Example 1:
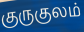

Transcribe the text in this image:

குருகுலம்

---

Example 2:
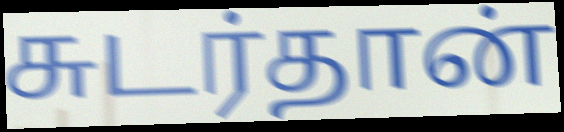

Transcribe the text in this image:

சுடர்தான்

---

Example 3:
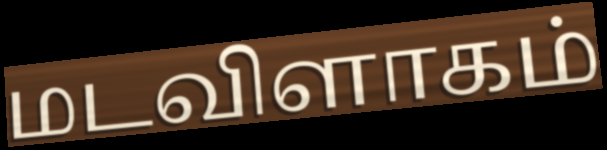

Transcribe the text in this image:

மடவிளாகம்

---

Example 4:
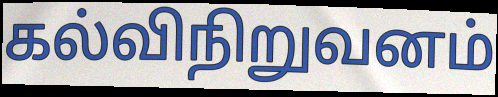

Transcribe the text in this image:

கல்விநிறுவனம்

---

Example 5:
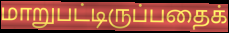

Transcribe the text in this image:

மாறுபட்டிருப்பதைக்